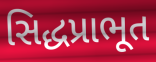
સિદ્ધપ્રાભૂત